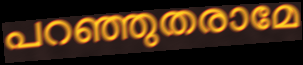
പറഞ്ഞുതരാമേ